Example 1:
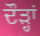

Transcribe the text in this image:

ਦੌੜ੍ਹਾਂ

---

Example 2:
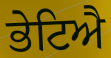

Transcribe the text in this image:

ਭੇਟਿਐ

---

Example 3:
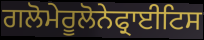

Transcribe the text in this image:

ਗਲੋਮੇਰੂਲੋਨੇਫ੍ਰਾਈਟਿਸ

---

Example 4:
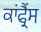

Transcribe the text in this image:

ਕਾਂਫ੍ਰੈਂਸ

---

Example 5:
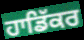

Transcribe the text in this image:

ਹਾਡਿੱਕਰ